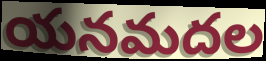
యనమదల